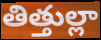
తిత్తుల్లా